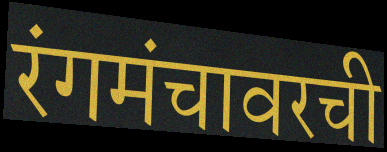
रंगमंचावरची